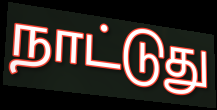
நாட்டுது